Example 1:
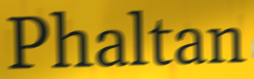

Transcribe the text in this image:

Phaltan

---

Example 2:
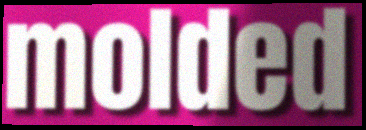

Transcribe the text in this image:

molded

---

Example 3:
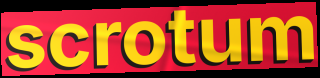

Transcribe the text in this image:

scrotum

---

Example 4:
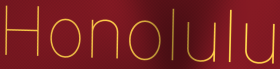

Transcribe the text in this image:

Honolulu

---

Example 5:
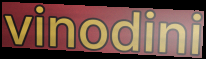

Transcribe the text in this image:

vinodini